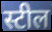
स्टील